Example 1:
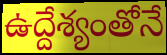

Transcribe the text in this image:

ఉద్దేశ్యంతోనే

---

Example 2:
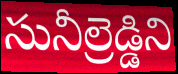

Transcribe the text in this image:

సునీల్రెడ్డిని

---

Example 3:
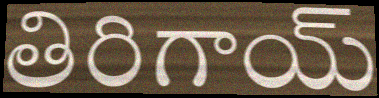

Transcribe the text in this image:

తిరిగాయ్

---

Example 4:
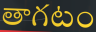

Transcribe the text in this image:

తాగటం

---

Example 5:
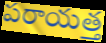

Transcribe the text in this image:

పరాయత్త